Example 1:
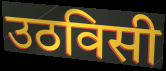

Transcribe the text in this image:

उठविसी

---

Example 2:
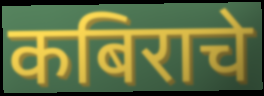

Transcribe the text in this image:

कबिराचे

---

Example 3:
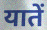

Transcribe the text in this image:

यातें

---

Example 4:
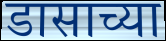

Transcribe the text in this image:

डासाच्या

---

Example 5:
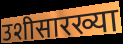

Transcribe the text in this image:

उशीसारख्या